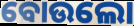
ବୋଉଲୋ